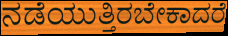
ನಡೆಯುತ್ತಿರಬೇಕಾದರೆ